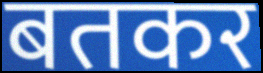
बतकर